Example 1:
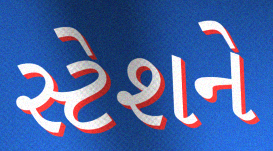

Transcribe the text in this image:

સ્ટેશને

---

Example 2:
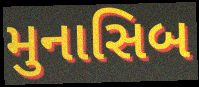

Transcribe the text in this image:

મુનાસિબ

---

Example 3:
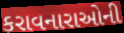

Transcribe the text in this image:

કરાવનારાઓની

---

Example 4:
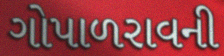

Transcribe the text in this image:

ગોપાળરાવની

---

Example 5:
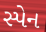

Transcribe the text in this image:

સ્પેન